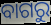
ବାଗରୁ